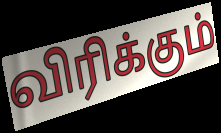
விரிக்கும்